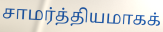
சாமர்த்தியமாகக்